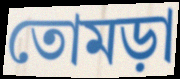
তোমড়া